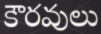
కౌరవులు